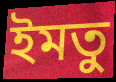
ইমতু